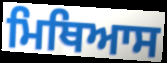
ਮਿਥਿਆਸ